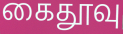
கைதூவு